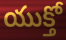
యుక్తో